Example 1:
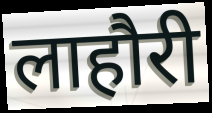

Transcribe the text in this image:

लाहौरी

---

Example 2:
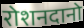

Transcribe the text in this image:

रोशनदानो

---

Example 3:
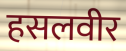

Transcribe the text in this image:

हसलवीर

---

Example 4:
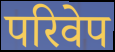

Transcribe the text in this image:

परिवेप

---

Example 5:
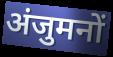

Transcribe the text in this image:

अंजुमनों